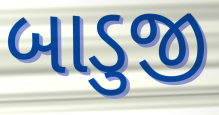
બાડુજી